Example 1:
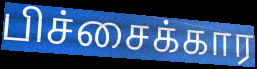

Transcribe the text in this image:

பிச்சைக்கார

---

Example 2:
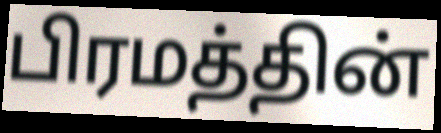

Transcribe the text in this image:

பிரமத்தின்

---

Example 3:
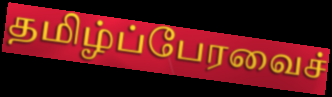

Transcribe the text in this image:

தமிழ்ப்பேரவைச்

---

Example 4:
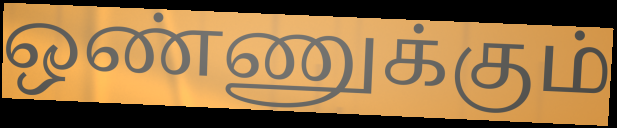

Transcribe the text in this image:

ஒண்ணுக்கும்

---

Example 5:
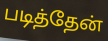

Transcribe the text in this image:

படித்தேன்